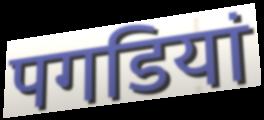
पगडियां